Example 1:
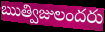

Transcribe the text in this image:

ఋత్విజులందరు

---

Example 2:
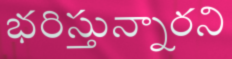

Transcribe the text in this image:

భరిస్తున్నారని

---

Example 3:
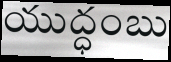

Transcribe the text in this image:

యుద్ధంబు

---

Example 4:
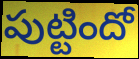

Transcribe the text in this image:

పుట్టిందో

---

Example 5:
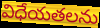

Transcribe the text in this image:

విధేయతలను